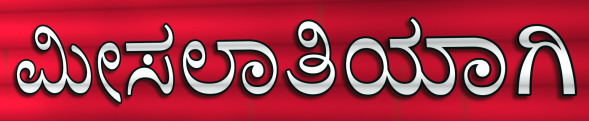
ಮೀಸಲಾತಿಯಾಗಿ